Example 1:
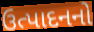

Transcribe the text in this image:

ઉત્પાદનનો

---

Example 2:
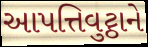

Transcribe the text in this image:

આપત્તિવુટ્ઠાને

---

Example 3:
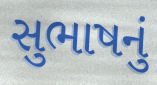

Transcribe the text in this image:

સુભાષનું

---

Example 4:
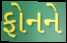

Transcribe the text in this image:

ફોનને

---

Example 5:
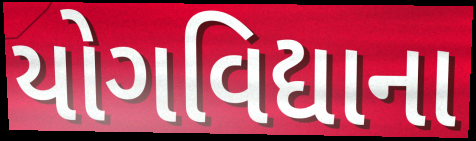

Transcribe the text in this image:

યોગવિદ્યાના